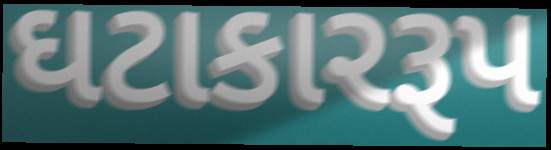
ઘટાકારરૂપ